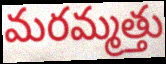
మరమ్మత్తు